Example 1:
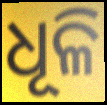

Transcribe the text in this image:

ଧୂଳି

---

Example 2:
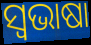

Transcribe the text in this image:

ସ୍ୱଭାଷା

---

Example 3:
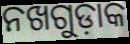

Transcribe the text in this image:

ନଖଗୁଡ଼ାକ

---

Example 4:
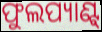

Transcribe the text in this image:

ଫୁଲପ୍ୟାଣ୍ଟ୍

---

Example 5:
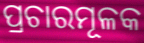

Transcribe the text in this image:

ପ୍ରଚାରମୂଳକ